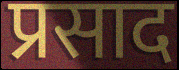
प्रसाद